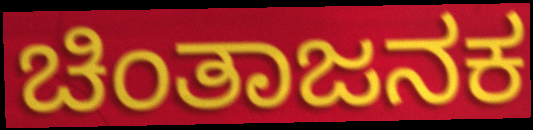
ಚಿಂತಾಜನಕ